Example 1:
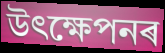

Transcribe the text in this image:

উৎক্ষেপনৰ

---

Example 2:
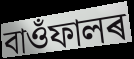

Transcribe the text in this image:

বাওঁফালৰ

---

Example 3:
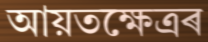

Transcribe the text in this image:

আয়তক্ষেত্ৰৰ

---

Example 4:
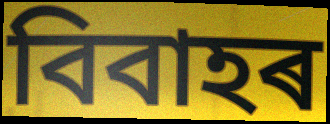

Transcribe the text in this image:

বিবাহৰ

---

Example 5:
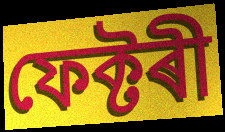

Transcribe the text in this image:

ফেক্টৰী